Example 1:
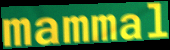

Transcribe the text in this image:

mammal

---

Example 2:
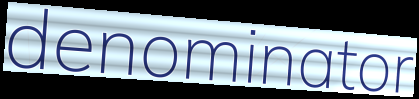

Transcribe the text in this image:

denominator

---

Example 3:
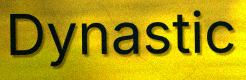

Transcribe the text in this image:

Dynastic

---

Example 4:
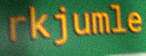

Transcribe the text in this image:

rkjumle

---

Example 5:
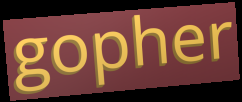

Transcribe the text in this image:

gopher